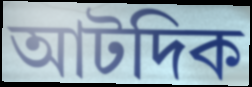
আটদিক